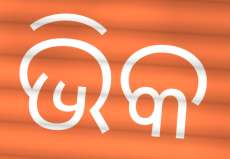
ଭିକ